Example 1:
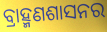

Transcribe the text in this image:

ବ୍ରାହ୍ମଣଶାସନର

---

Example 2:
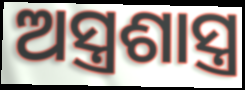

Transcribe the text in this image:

ଅସ୍ତ୍ରଶାସ୍ତ୍ର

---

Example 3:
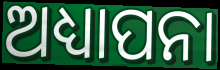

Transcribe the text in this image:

ଅଧ୍ୟାପନା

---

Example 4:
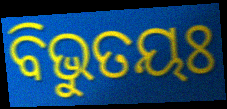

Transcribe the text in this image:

ବିଭୁତୟଃ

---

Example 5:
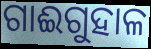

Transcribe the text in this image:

ଗାଈଗୁହାଳ